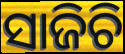
ସାଜିଚି